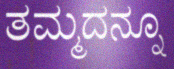
ತಮ್ಮದನ್ನೂ